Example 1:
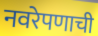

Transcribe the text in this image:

नवरेपणाची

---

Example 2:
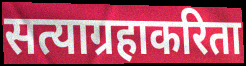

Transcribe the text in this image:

सत्याग्रहाकरिता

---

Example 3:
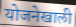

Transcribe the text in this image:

योजनेखाली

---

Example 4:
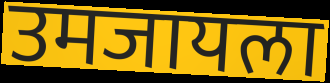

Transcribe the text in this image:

उमजायला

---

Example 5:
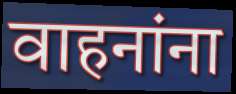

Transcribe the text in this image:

वाहनांना